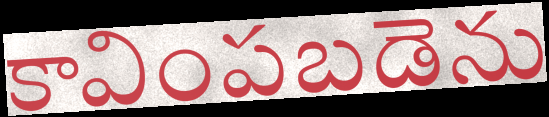
కావింపబడెను